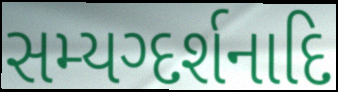
સમ્યગ્દર્શનાદિ